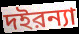
দইরন্যা